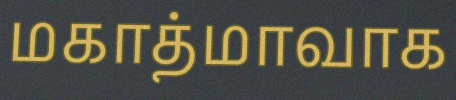
மகாத்மாவாக